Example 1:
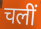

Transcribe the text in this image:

चलीं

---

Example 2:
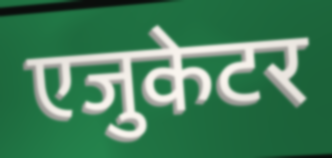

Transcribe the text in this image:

एजुकेटर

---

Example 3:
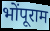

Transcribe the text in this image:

भोंपूराम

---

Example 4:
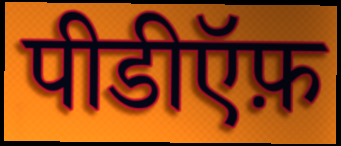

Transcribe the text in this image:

पीडीऍफ़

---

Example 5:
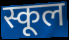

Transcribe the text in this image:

स्कूल